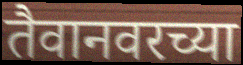
तैवानवरच्या